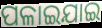
ପଳାଇଯାଇ